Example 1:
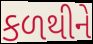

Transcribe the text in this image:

કળથીને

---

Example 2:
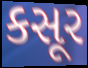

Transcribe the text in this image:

કસૂર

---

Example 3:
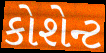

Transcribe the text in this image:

કોશેન્ટ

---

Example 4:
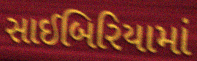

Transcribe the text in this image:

સાઈબિરિયામાં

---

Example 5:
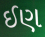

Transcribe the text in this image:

ઈણ